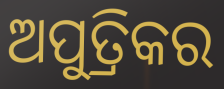
ଅପୁତ୍ରିକର